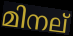
മിനല്